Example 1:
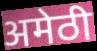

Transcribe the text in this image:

अमेठी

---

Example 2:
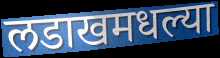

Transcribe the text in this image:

लडाखमधल्या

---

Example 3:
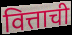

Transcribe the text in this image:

वित्ताची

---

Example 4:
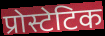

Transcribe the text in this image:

प्रोस्टेटिक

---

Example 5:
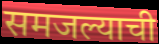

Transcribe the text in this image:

समजल्याची